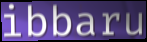
ibbaru